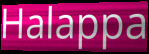
Halappa